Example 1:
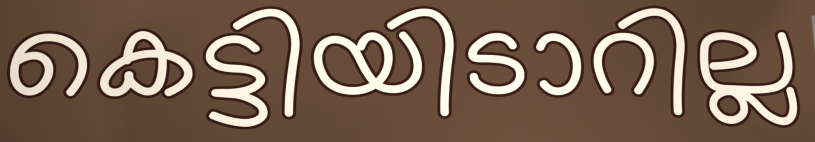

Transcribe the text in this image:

കെട്ടിയിടാറില്ല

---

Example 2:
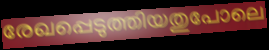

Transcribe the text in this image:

രേഖപ്പെടുത്തിയതുപോലെ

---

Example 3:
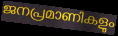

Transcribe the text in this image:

ജനപ്രമാണികളും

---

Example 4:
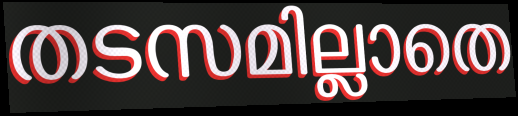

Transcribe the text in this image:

തടസമില്ലാതെ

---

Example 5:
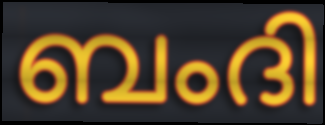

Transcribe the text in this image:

ബംദി